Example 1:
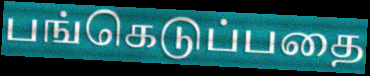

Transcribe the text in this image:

பங்கெடுப்பதை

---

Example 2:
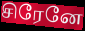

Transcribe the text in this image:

சிரேனே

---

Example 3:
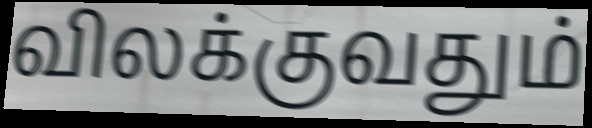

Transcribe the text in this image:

விலக்குவதும்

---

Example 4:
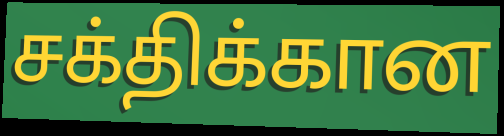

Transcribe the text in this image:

சக்திக்கான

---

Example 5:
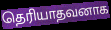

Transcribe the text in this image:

தெரியாதவனாக